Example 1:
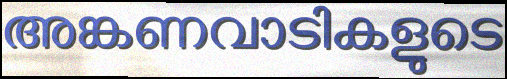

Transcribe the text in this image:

അങ്കണവാടികളുടെ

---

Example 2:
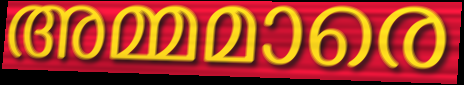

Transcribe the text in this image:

അമ്മമാരെ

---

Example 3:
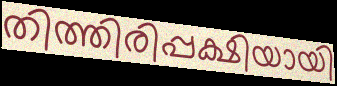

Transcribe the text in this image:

തിത്തിരിപ്പക്ഷിയായി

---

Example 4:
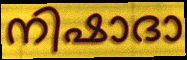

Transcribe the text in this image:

നിഷാദാ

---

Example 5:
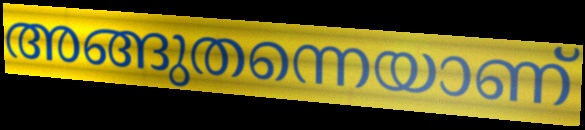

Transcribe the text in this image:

അങ്ങുതന്നെയാണ്